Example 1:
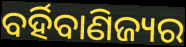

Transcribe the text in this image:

ବର୍ହିବାଣିଜ୍ୟର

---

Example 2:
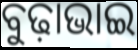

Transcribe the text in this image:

ବୁଢ଼ାଭାଇ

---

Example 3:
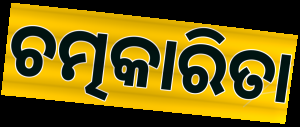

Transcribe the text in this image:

ଚତ୍ମକାରିତା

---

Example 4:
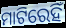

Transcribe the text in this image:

ମାଟିରେହିଁ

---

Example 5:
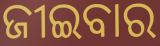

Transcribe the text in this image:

ଜୀଇବାର